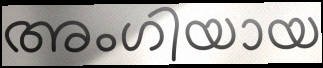
അംഗിയായ